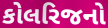
કોલરિજનો